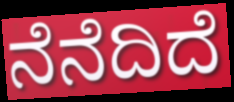
ನೆನೆದಿದೆ